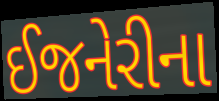
ઈજનેરીના